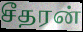
சீதரன்